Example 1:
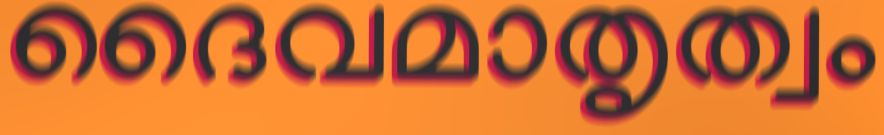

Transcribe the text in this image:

ദൈവമാതൃത്വം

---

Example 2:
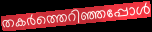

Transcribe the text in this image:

തകർത്തെറിഞ്ഞപ്പോൾ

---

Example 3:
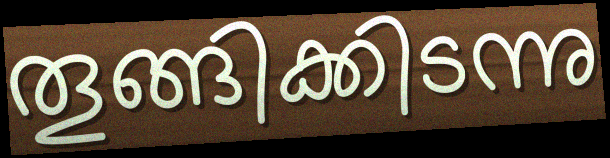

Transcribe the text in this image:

തൂങ്ങിക്കിടന്നു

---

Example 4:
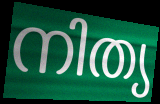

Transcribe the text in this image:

നിത്യ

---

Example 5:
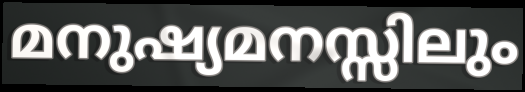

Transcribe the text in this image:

മനുഷ്യമനസ്സിലും